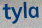
tyla